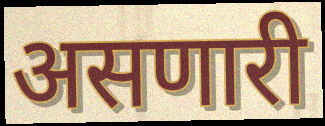
असणारी